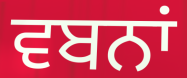
ਵਬਨਾਂ